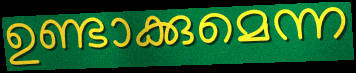
ഉണ്ടാക്കുമെന്ന